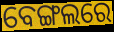
ବେଙ୍ଗଲରେ